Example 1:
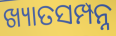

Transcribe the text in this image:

ଖ୍ୟାତସମ୍ପନ୍ନ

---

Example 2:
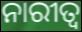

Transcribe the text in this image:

ନାରୀତ୍ୱ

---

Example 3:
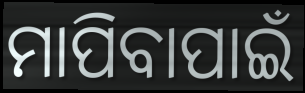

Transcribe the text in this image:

ମାପିବାପାଇଁ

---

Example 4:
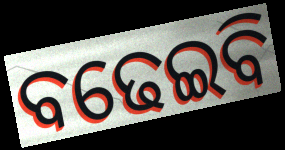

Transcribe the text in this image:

ବଢେଇବି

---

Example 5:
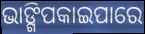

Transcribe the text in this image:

ଭାଙ୍ଗିପକାଇପାରେ